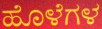
ಹೊಳೆಗಳ